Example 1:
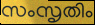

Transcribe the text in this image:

സംസൃതിം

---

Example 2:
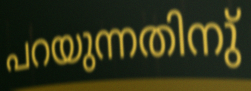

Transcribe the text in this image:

പറയുന്നതിനു്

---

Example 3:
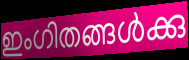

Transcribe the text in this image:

ഇംഗിതങ്ങൾക്കു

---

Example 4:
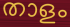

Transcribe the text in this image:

താളം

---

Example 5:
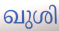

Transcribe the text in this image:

ഖുശി